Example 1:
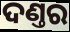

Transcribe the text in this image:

ଦଣ୍ତର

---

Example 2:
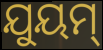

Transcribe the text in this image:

ଯୁୟମ୍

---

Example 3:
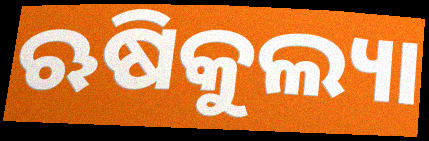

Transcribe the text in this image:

ଋଷିକୁଲ୍ୟା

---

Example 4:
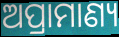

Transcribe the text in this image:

ଅପ୍ରାମାଣ୍ୟ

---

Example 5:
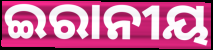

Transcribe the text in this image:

ଇରାନୀୟ